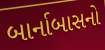
બાર્નાબાસનો